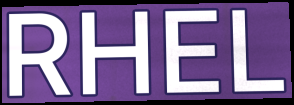
RHEL